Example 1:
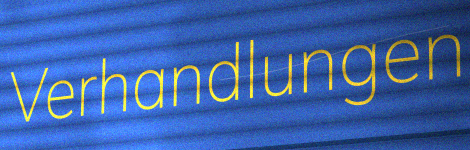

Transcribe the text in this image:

Verhandlungen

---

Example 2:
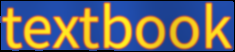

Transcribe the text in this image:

textbook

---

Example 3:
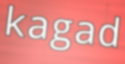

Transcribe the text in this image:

kagad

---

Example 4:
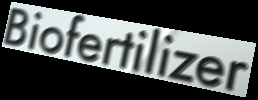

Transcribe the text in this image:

Biofertilizer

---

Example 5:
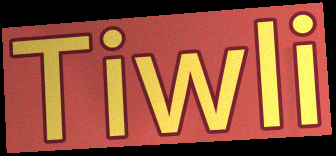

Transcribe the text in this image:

Tiwli